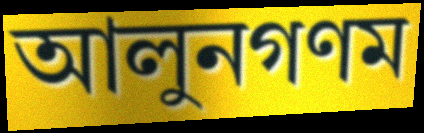
আলুনগণম